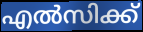
എൽസിക്ക്